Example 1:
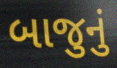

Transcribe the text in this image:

બાજુનું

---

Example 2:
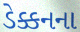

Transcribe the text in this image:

ડેક્કનના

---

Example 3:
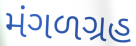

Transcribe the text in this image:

મંગળગ્રહ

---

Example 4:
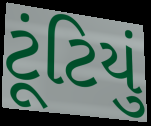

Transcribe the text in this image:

ટૂંટિયું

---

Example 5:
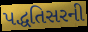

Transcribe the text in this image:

પદ્ધતિસરની